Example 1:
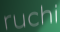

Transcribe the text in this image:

ruchi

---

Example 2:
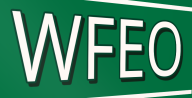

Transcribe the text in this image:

WFEO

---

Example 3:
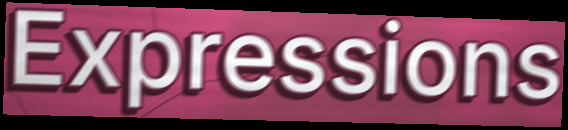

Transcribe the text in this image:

Expressions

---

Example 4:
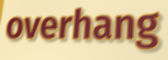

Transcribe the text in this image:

overhang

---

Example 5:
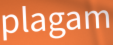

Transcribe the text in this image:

plagam